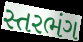
સ્તરભંગ